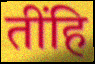
तींहि